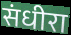
संधीरा